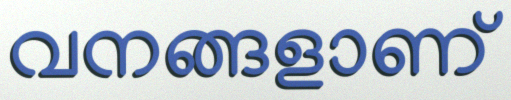
വനങ്ങളാണ്